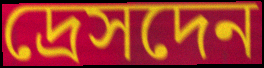
দ্রেসদেন